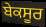
ਬੇਕਸੂਰ